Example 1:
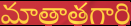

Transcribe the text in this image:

మాతాతగారి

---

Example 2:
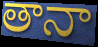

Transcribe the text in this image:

తానా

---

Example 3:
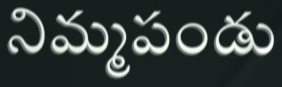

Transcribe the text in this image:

నిమ్మపండు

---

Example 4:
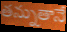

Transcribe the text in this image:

తన్నుతానే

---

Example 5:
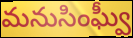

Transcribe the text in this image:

మనుసింఘ్వీ